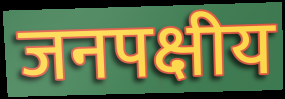
जनपक्षीय